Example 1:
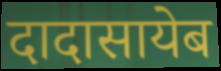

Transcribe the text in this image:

दादासायेब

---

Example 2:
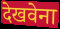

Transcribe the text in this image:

देखवेना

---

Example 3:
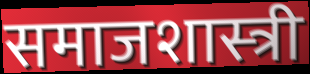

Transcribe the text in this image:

समाजशास्त्री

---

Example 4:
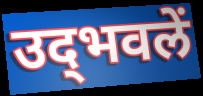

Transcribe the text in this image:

उद्‍भवलें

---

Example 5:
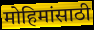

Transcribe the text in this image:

मोहिमांसाठी